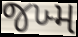
જખ્મ